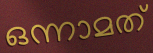
ഒന്നാമത്